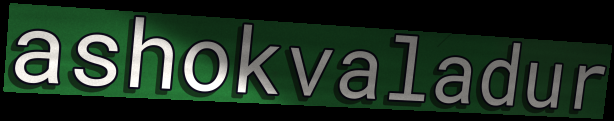
ashokvaladur